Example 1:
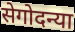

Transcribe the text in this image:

सेगोदन्या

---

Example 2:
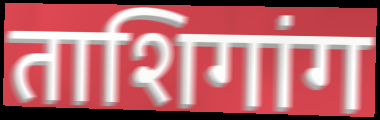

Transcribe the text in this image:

ताशिगांग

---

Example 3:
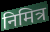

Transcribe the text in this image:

निमित्र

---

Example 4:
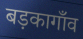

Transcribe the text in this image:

बड़कागाँव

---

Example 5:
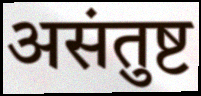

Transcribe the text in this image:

असंतुष्ट